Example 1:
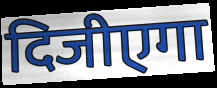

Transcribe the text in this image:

दिजीएगा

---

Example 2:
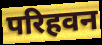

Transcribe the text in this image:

परिहवन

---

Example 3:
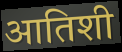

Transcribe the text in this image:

आतिशी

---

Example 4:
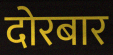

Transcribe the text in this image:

दोरबार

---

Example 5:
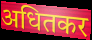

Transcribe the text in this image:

अधितकर